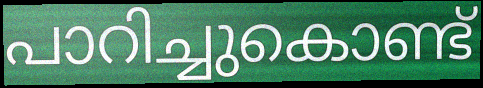
പാറിച്ചുകൊണ്ട്